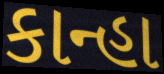
કાન્હા